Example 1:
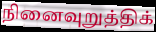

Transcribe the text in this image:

நினைவுறுத்திக்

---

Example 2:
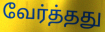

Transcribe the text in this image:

வேர்த்தது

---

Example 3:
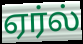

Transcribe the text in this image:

ஏர்ல்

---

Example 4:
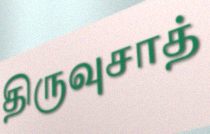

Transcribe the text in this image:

திருவுசாத்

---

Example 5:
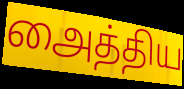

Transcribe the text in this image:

அைத்திய